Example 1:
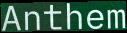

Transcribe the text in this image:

Anthem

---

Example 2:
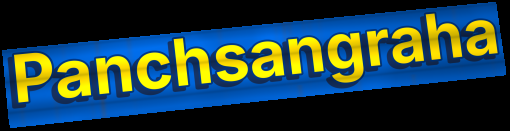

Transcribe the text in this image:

Panchsangraha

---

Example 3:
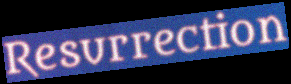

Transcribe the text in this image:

Resurrection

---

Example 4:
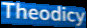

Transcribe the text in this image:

Theodicy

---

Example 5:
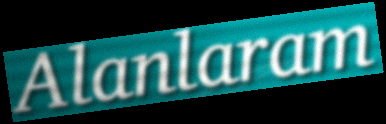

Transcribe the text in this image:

Alanlaram